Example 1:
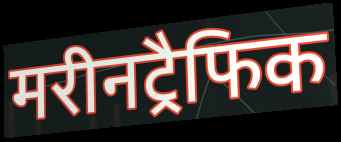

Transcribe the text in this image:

मरीनट्रैफिक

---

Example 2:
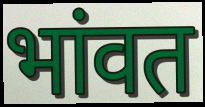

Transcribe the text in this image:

भांवत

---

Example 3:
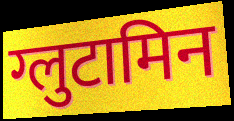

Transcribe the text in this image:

ग्लुटामिन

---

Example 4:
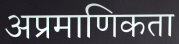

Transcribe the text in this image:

अप्रमाणिकता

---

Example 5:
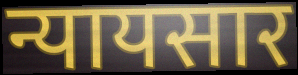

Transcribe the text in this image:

न्यायसार